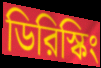
ডিরিস্কিং